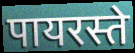
पायरस्ते